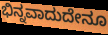
ಭಿನ್ನವಾದುದೇನೂ